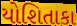
યોશિતાકા